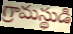
గ్రామస్థుడి